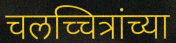
चलच्चित्रांच्या